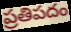
ప్రతిపదం